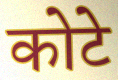
कोटे